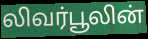
லிவர்பூலின்